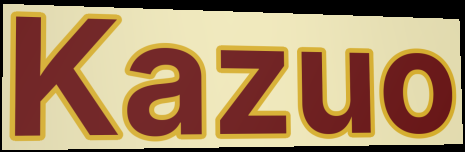
Kazuo